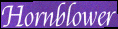
Hornblower